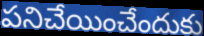
పనిచేయించేందుకు